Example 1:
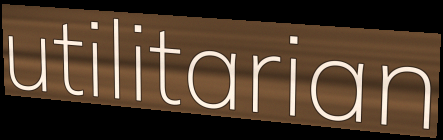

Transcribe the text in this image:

utilitarian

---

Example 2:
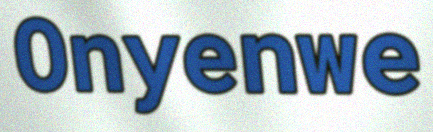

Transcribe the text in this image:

Onyenwe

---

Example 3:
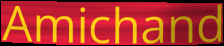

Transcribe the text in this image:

Amichand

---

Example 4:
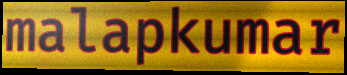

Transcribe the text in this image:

malapkumar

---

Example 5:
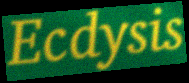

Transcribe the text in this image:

Ecdysis